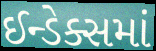
ઈન્ડેક્સમાં